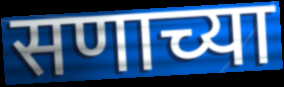
सणाच्या